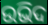
ଉଭିଦ